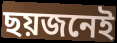
ছয়জনেই